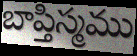
బాప్తిస్మము